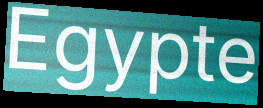
Egypte